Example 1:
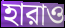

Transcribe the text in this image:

হারাও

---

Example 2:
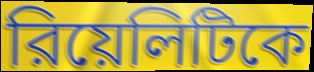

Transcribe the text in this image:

রিয়েলিটিকে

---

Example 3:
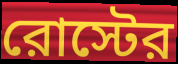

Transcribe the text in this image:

রোস্টের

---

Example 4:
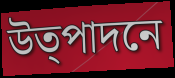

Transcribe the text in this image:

উত্পাদনে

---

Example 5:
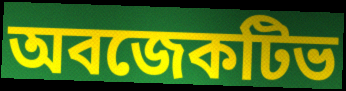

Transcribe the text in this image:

অবজেকটিভ